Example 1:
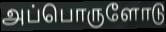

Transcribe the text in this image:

அப்பொருளோடு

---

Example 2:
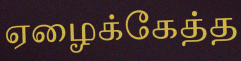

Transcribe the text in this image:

ஏழைக்கேத்த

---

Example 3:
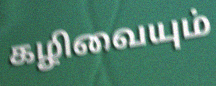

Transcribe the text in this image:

கழிவையும்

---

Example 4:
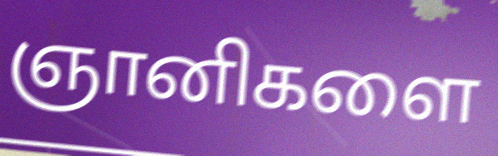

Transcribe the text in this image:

ஞானிகளை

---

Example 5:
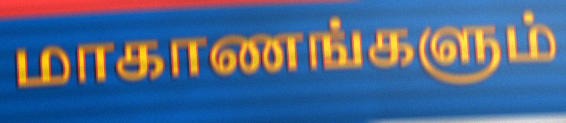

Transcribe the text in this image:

மாகாணங்களும்